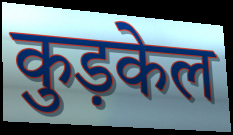
कुड़केल